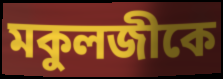
মকুলজীকে